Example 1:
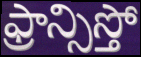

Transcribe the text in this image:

ఫ్రాన్సిస్తో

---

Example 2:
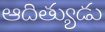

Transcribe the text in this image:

ఆదిత్యుడు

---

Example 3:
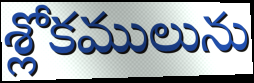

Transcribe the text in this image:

శ్లోకములును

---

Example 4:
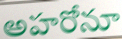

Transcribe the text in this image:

అహరోనూ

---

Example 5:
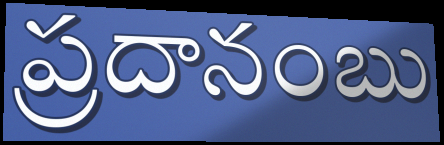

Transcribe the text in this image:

ప్రదానంబు